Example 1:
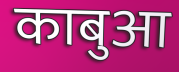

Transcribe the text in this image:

काबुआ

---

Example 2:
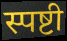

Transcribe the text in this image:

स्पष्टी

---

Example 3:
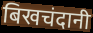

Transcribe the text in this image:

बिखचंदानी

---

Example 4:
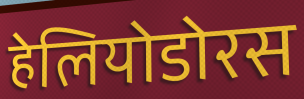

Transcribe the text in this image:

हेलियोडोरस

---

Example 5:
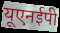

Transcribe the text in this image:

यूएनईपी